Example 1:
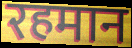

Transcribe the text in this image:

रहमान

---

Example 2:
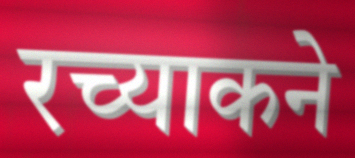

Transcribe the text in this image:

रच्याकने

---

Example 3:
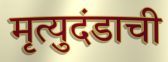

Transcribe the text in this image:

मृत्युदंडाची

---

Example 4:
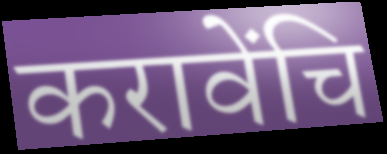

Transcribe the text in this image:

करावेंचि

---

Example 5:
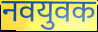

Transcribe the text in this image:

नवयुवक